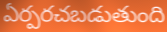
ఏర్పరచబడుతుంది